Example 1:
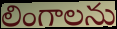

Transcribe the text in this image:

లింగాలను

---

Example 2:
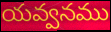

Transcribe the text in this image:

యవ్వనము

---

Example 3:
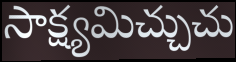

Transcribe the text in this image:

సాక్ష్యమిచ్చుచు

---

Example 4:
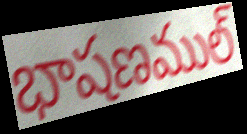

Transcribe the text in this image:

భాషణముల్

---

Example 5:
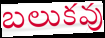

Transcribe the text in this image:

బలుకవు